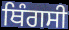
ਥਿੰਗਸੀ